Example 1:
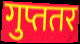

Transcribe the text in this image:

गुप्ततर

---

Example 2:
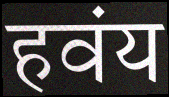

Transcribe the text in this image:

हवंय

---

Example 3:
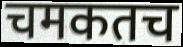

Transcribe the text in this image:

चमकतच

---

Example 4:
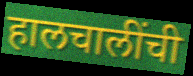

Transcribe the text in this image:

हालचालींची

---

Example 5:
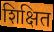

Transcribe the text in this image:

शिक्षित